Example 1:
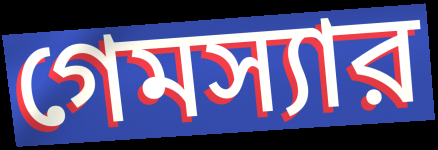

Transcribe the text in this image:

গেমস্যার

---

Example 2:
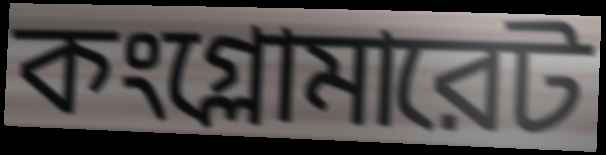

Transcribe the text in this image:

কংগ্লোমারেট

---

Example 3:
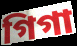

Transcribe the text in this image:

গিগা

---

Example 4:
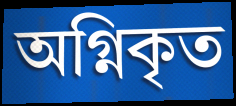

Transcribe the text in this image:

অগ্নিকৃত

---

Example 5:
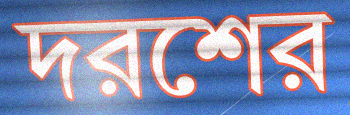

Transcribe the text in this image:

দরশের